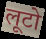
लूटो